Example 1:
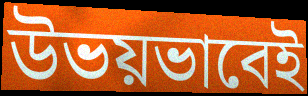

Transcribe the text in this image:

উভয়ভাবেই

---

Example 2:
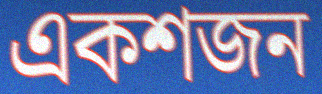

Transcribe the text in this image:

একশজন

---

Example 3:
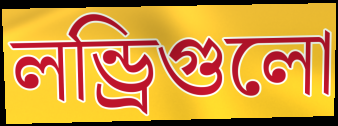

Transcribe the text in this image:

লন্ড্রিগুলো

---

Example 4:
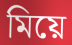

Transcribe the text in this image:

মিয়ে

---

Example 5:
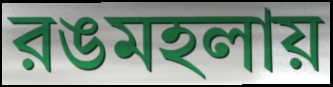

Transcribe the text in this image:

রঙমহলায়